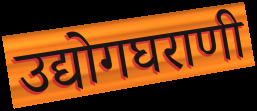
उद्योगघराणी